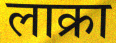
लाक्रा